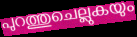
പുറത്തുചെല്ലുകയും